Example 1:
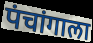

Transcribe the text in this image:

पंचांगाला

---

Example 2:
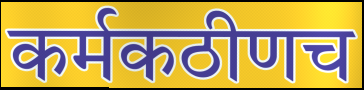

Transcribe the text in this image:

कर्मकठीणच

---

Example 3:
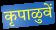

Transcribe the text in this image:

कृपाळुवें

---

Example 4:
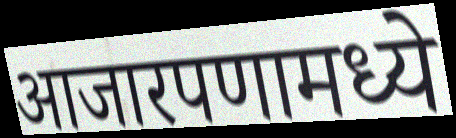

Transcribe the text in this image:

आजारपणामध्ये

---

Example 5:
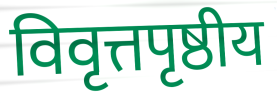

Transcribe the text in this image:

विवृत्तपृष्ठीय